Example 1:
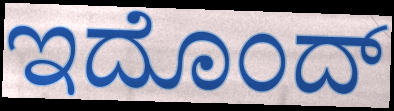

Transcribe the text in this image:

ಇದೊಂದ್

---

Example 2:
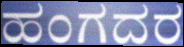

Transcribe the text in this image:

ಹಂಗದರ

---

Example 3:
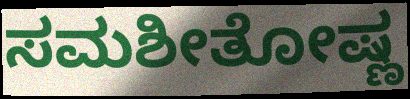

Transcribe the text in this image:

ಸಮಶೀತೋಷ್ಣ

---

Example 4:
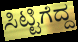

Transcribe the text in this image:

ಸಿಟ್ಟಿಗೆದ್ದ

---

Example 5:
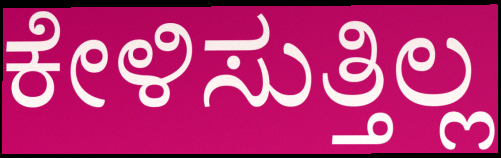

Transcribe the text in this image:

ಕೇಳಿಸುತ್ತಿಲ್ಲ